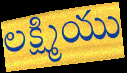
లక్ష్మియు